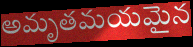
అమృతమయమైన